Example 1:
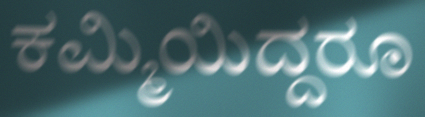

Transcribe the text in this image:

ಕಮ್ಮಿಯಿದ್ದರೂ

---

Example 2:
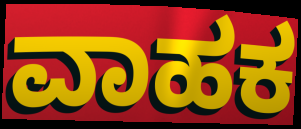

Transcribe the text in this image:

ವಾಹಕ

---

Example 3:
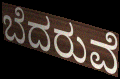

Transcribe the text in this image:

ಬೆದರುವೆ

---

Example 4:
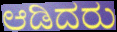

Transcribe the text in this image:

ಆಡಿದರು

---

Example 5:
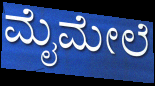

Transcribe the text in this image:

ಮೈಮೇಲೆ